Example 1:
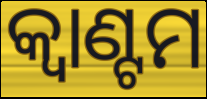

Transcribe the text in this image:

କ୍ୱାଣ୍ଟମ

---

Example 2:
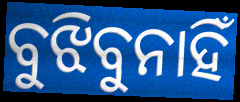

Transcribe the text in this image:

ବୁଝିବୁନାହିଁ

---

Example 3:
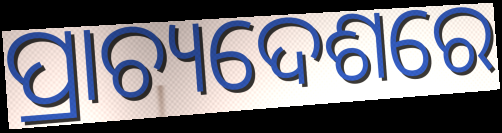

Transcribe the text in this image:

ପ୍ରାଚ୍ୟଦେଶରେ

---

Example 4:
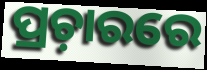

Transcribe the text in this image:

ପ୍ରଚ଼ାରରେ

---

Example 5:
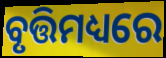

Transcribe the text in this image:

ବୃତ୍ତିମଧ୍ୟରେ